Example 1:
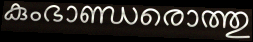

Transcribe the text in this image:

കുംഭാണ്ഡരൊത്തു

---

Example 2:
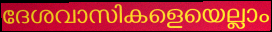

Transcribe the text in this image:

ദേശവാസികളെയെല്ലാം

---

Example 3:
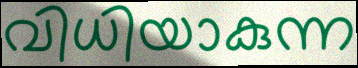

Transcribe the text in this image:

വിധിയാകുന്ന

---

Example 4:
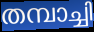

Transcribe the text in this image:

തമ്പാച്ചി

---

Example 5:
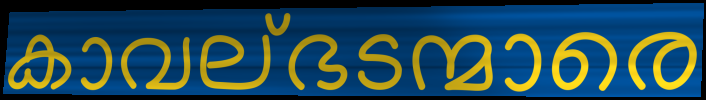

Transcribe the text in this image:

കാവല്ഭടന്മാരെ